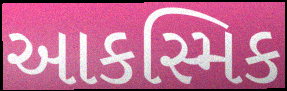
આકસ્મિક